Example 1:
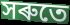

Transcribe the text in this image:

সৰুতে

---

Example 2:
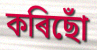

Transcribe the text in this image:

কৰিছোঁ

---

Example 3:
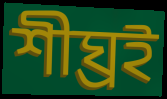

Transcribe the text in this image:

শীঘ্ৰই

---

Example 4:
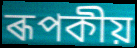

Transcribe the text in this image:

ৰূপকীয়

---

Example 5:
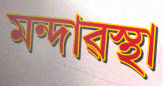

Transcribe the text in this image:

মন্দাৱস্থা